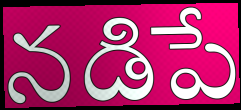
నడిపే